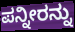
ಪನ್ನೀರನ್ನು